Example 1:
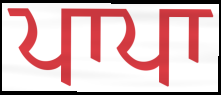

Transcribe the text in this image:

ਪਾਪਾ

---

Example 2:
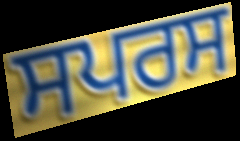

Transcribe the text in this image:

ਸਪਰਸ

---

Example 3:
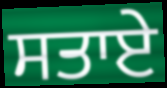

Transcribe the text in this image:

ਸਤਾਏ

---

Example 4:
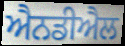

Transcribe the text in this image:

ਐਨਡੀਐਲ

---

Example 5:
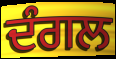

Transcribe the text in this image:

ਦੰਗਲ